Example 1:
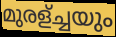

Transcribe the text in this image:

മുരള്ച്ചയും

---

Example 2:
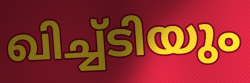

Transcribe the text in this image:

ഖിച്ച്ടിയും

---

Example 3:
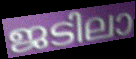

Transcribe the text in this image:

ജടിലാ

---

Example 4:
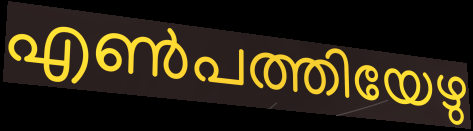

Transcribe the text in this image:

എൺപത്തിയേഴു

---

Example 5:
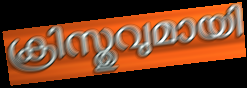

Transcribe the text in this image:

ക്രിസ്തുവുമായി